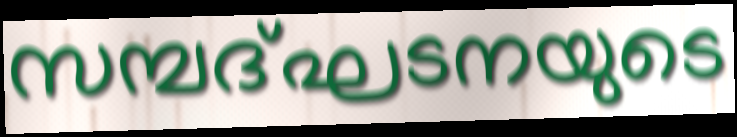
സമ്പദ്ഘടനയുടെ